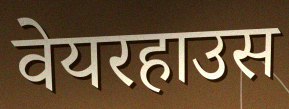
वेयरहाउस